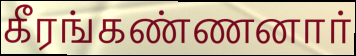
கீரங்கண்ணனார்